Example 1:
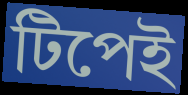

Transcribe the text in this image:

টিপেই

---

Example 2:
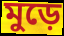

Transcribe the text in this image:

মুড়ে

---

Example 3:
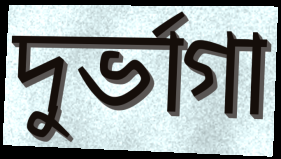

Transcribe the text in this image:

দুর্ভাগা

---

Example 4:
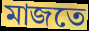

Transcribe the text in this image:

মাজতে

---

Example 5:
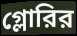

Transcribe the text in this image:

গ্লোরির